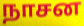
நாசன